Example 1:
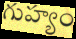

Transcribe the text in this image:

గుహ్యం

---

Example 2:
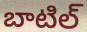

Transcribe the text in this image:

బాటిల్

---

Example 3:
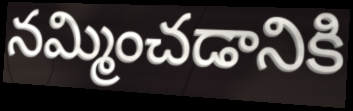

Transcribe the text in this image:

నమ్మించడానికి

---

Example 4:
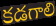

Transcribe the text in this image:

కడగాలి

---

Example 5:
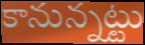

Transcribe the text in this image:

కానున్నట్టు